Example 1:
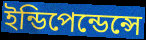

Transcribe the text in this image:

ইন্ডিপেন্ডেন্সে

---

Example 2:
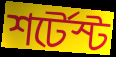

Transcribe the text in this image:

শর্টেস্ট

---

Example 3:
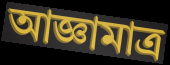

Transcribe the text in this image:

আজ্ঞামাত্র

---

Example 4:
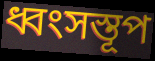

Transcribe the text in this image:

ধ্বংসস্তূপ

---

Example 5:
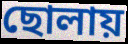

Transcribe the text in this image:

ছোলায়